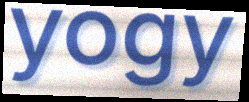
yogy